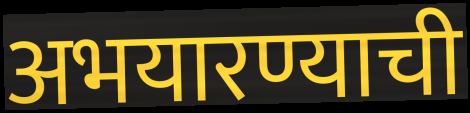
अभयारण्याची